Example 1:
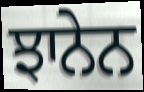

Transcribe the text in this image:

ਝਾਨੇਨ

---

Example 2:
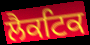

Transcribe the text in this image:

ਲੈਕਟਿਕ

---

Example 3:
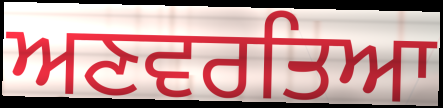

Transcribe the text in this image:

ਅਣਵਰਤਿਆ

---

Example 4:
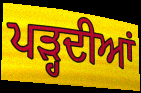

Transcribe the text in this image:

ਪੜ੍ਹਦੀਆਂ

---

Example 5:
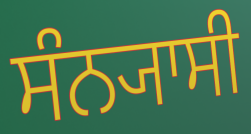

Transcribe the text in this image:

ਸੰਨ੍ਯਾਸੀ